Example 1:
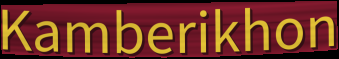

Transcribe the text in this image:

Kamberikhon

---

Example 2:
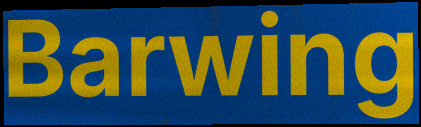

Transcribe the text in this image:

Barwing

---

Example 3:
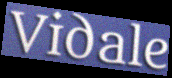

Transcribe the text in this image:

Vidale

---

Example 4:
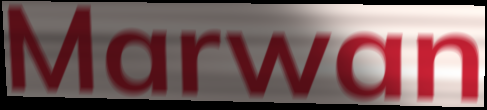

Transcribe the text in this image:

Marwan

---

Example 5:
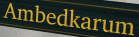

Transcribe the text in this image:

Ambedkarum